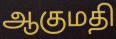
ஆகுமதி